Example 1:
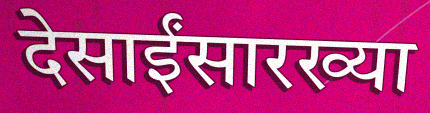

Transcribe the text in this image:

देसाईंसारख्या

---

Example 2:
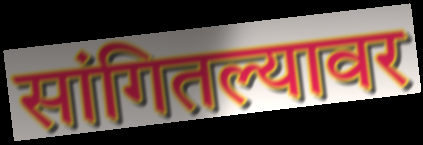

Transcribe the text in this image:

सांगितल्यावर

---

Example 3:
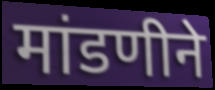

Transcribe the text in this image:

मांडणीने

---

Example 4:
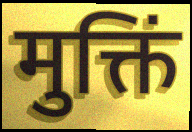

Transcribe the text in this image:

मुक्तिं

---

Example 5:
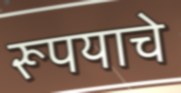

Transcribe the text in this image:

रूपयाचे